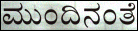
ಮುಂದಿನಂತೆ